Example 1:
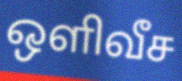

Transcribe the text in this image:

ஒளிவீச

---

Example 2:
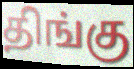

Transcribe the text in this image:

திங்கு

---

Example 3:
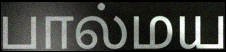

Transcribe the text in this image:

பால்மய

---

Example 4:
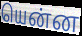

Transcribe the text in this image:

யென்ன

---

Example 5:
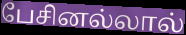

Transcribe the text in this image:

பேசினல்லால்